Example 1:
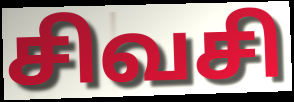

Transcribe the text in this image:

சிவசி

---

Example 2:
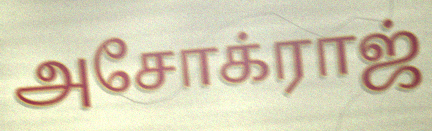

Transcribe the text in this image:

அசோக்ராஜ்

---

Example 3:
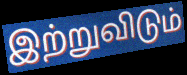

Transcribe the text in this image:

இற்றுவிடும்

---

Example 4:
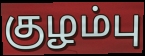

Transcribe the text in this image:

குழம்பு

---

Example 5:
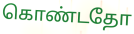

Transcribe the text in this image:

கொண்டதோ